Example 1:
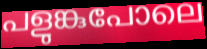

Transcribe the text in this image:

പളുങ്കുപോലെ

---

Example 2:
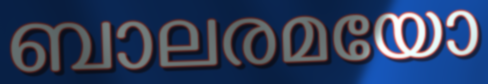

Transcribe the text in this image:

ബാലരമയോ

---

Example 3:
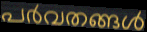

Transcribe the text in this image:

പർവതങ്ങൾ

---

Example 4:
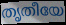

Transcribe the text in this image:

തൃതീയേ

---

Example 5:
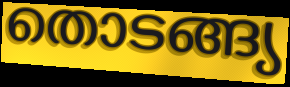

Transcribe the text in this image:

തൊടങ്ങ്യ